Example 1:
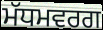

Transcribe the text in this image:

ਮੱਧਮਵਰਗ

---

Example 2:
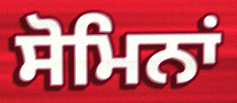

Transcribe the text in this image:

ਸੋਮਿਨਾਂ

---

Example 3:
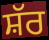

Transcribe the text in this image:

ਸ਼ੱਰ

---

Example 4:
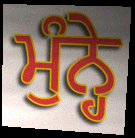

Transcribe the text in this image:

ਮੁੰਨ੍ਹੇ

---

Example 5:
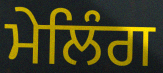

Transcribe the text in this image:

ਮੇਲਿੰਗ